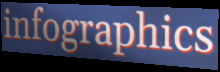
infographics